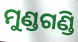
ମୁଣ୍ଡଗଣ୍ଡି